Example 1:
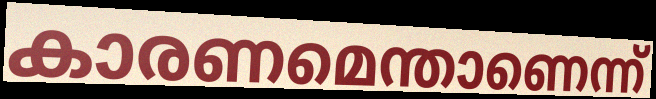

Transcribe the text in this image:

കാരണമെന്താണെന്ന്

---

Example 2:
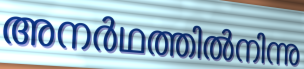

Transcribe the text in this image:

അനർഥത്തിൽനിന്നു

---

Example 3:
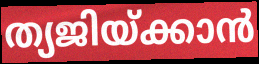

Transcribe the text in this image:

ത്യജിയ്ക്കാൻ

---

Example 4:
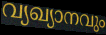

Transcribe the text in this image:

വ്യഖ്യാനവും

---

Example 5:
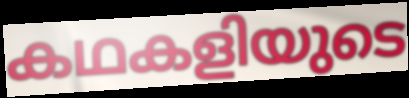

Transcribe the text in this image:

കഥകളിയുടെ